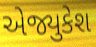
એજ્યુકેશ